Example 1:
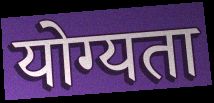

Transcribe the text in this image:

योग्यता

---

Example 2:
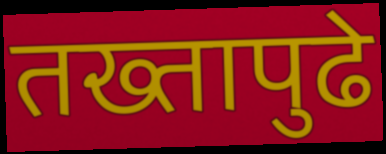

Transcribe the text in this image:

तख्तापुढे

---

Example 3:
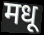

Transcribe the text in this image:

मधू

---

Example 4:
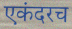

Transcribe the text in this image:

एकंदरच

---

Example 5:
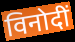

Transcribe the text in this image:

विनोदीं